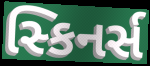
સ્કિનર્સ